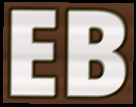
EB